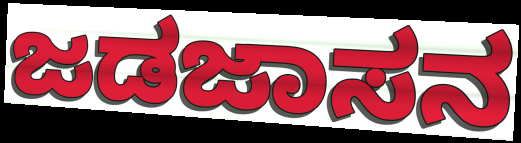
ಜಡಜಾಸನ